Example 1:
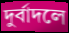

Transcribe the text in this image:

দুর্বাদলে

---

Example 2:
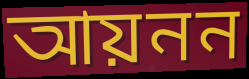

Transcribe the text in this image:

আয়নন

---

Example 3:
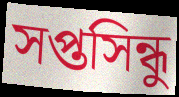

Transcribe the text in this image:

সপ্তসিন্ধু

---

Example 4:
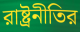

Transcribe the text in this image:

রাষ্ট্রনীতির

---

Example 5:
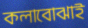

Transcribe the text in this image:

কলাবোঝাই